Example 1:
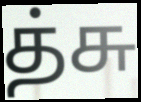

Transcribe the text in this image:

த்சு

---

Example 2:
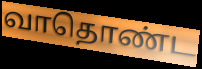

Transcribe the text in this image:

வாதொண்ட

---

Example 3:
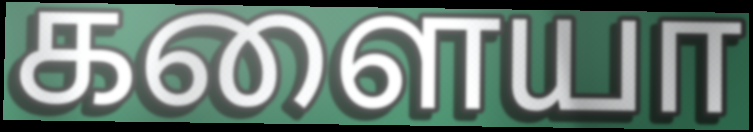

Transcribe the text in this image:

களையா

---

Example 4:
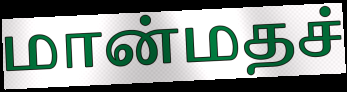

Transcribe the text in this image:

மான்மதச்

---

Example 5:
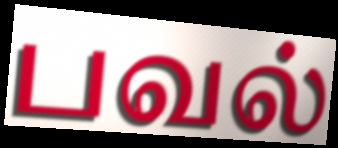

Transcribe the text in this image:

பவல்